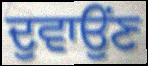
ਦੁਵਾਉਂਣ